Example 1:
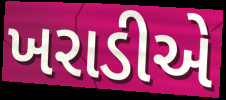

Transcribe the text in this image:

ખરાડીએ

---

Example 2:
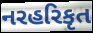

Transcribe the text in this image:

નરહરિકૃત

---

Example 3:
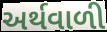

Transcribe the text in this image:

અર્થવાળી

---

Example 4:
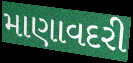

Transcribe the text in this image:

માણાવદરી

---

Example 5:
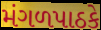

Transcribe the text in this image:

મંગળપાઠકે